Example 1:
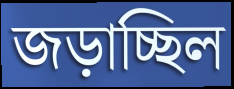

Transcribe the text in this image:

জড়াচ্ছিল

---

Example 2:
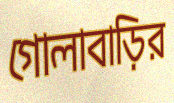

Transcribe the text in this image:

গোলাবাড়ির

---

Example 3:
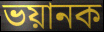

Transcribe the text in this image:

ভয়ানক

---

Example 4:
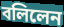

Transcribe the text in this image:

বলিলেন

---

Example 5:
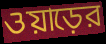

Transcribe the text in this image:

ওয়াড়ের